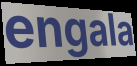
engala